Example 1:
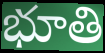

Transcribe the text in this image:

భూతి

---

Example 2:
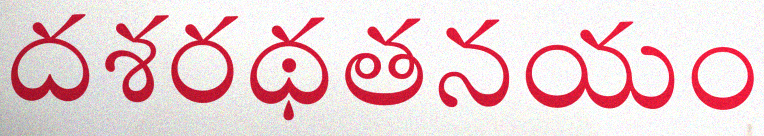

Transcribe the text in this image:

దశరథతనయం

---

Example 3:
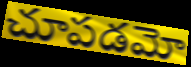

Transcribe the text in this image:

చూపడమో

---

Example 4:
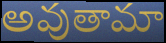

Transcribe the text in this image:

అవుతామా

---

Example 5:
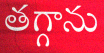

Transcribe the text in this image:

తగ్గాను